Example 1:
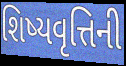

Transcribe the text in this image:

શિષ્યવૃત્તિની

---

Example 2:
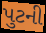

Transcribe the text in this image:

પુટની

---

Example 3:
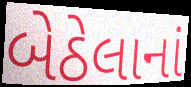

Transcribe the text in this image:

બેઠેલાનાં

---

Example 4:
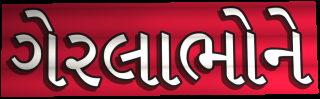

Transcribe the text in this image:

ગેરલાભોને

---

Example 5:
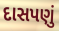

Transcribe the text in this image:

દાસપણું